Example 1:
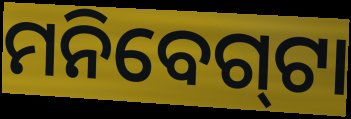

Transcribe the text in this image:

ମନିବେଗ୍‍ଟା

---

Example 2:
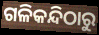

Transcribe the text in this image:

ଗଳିକନ୍ଦିଠାରୁ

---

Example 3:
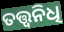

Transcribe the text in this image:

ତତ୍ତ୍ଵନିଧି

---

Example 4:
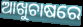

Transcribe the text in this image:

ଆଖୁଚାଷରେ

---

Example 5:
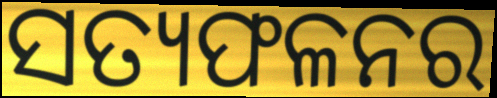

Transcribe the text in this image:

ସତ୍ୟଫଳନର